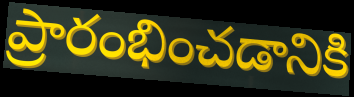
ప్రారంభించడానికి